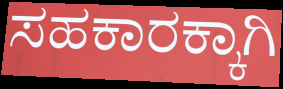
ಸಹಕಾರಕ್ಕಾಗಿ